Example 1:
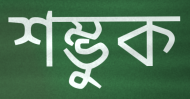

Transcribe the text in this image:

শম্ভুক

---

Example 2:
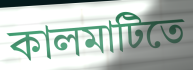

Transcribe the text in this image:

কালমাটিতে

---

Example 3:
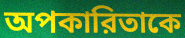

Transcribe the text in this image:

অপকারিতাকে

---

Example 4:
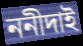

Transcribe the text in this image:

ননীদাই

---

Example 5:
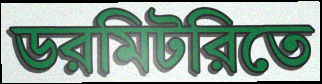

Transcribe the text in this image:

ডরমিটরিতে